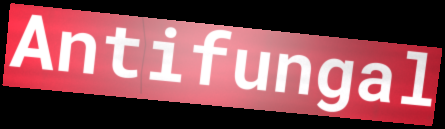
Antifungal